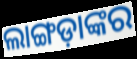
ଲାଙ୍ଗଡ଼ାଙ୍କର